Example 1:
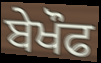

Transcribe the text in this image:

ਬੇਖੌਫ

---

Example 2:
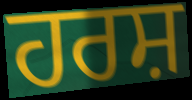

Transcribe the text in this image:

ਹਰਸ਼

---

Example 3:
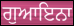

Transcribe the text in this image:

ਗੁਆਇਨਾ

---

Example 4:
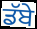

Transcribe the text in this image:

ਡੱਬੇ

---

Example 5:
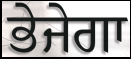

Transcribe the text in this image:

ਭੇਜੇਗਾ